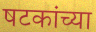
षटकांच्या